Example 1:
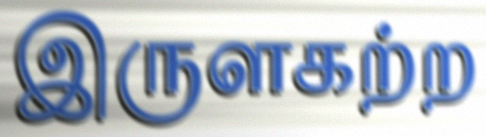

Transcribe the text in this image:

இருளகற்ற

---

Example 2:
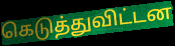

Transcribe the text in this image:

கெடுத்துவிட்டன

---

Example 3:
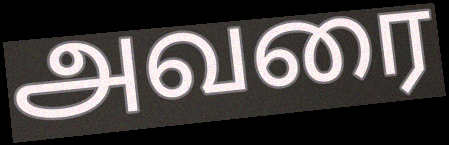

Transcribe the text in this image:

அவரை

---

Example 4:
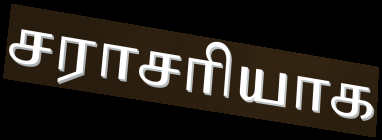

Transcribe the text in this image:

சராசரியாக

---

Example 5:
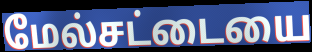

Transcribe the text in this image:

மேல்சட்டையை